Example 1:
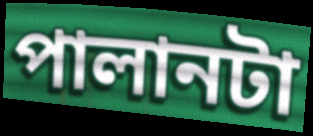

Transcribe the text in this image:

পালানটা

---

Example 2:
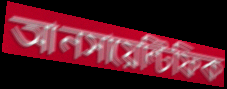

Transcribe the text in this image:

আনসায়েন্টিফিক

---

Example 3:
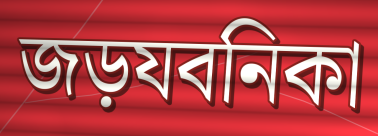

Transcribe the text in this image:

জড়যবনিকা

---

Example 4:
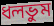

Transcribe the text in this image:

ধলভুম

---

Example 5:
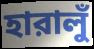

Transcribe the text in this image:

হারালুঁ